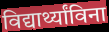
विद्यार्थ्यांविना